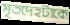
মৃতদেহটাকে